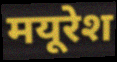
मयूरेश